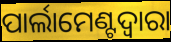
ପାର୍ଲାମେଣ୍ଟଦ୍ୱାରା